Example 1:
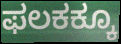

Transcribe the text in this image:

ಫಲಕಕ್ಕೂ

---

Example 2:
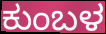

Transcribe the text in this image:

ಕುಂಬಳ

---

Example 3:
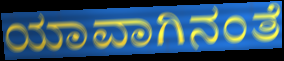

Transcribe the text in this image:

ಯಾವಾಗಿನಂತೆ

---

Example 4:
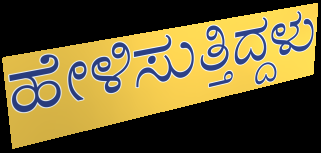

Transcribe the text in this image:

ಹೇಳಿಸುತ್ತಿದ್ದಳು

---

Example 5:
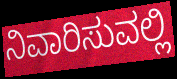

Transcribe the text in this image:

ನಿವಾರಿಸುವಲ್ಲಿ